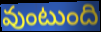
వుంటుంది